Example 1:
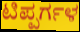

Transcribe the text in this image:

ಟಿಪ್ಪರ್ಗಳ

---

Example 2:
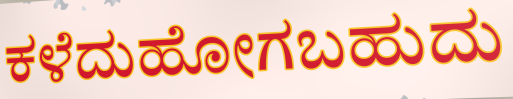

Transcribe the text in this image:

ಕಳೆದುಹೋಗಬಹುದು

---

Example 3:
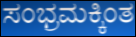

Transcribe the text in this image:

ಸಂಭ್ರಮಕ್ಕಿಂತ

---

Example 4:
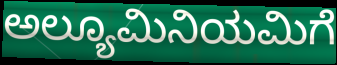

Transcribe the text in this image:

ಅಲ್ಯೂಮಿನಿಯಮಿಗೆ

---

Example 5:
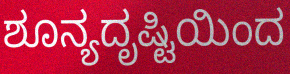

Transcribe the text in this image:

ಶೂನ್ಯದೃಷ್ಟಿಯಿಂದ